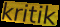
kritik